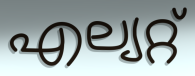
എല്യറ്റ്